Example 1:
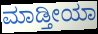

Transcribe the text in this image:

ಮಾಡ್ತೀಯಾ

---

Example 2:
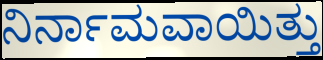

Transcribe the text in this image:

ನಿರ್ನಾಮವಾಯಿತ್ತು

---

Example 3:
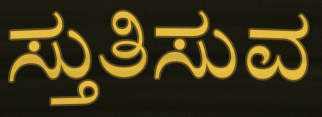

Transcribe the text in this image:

ಸ್ತುತಿಸುವ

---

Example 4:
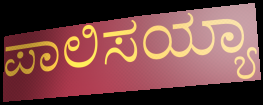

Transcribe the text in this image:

ಪಾಲಿಸಯ್ಯಾ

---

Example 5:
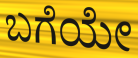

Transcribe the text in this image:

ಬಗೆಯೇ